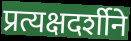
प्रत्यक्षदर्शीने